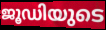
ജൂഡിയുടെ